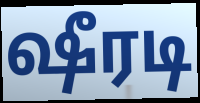
ஷீரடி